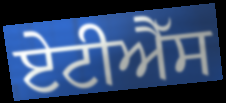
ਏਟੀਐੱਸ